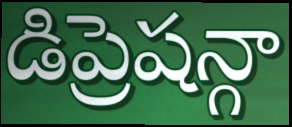
డిప్రెషన్గా